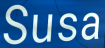
Susa